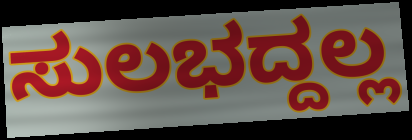
ಸುಲಭದ್ದಲ್ಲ